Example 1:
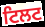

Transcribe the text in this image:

ਟਿਲਟ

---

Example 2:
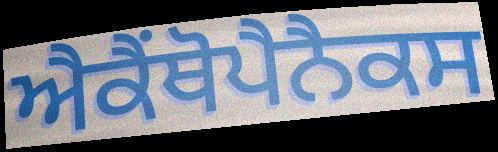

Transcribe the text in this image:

ਐਕੈਂਥੋਪੈਨੈਕਸ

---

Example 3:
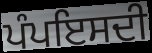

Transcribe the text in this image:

ਪੰਪਇਸਦੀ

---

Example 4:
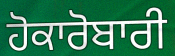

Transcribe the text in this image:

ਹੋਕਾਰੋਬਾਰੀ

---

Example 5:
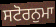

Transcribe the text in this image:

ਸਟੋਰਨੁਮਾ